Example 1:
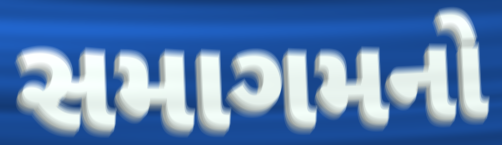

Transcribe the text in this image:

સમાગમનો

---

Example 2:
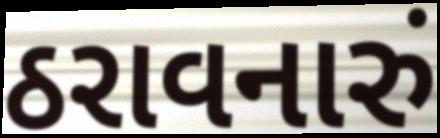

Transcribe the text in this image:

ઠરાવનારું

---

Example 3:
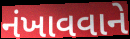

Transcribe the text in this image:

નંખાવવાને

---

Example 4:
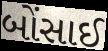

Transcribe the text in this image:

બોંસાઈ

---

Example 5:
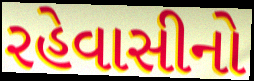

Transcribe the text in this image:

રહેવાસીનો